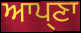
ਆਪ੍ਣਾ